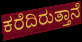
ಕರೆದಿರುತ್ತಾನೆ